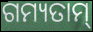
ଗମ୍ୟତାମ୍